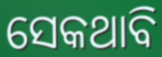
ସେକଥାବି